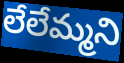
లేలేమ్మని